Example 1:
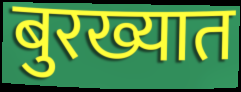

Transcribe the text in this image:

बुरख्यात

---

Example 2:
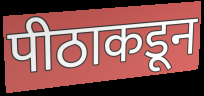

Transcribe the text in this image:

पीठाकडून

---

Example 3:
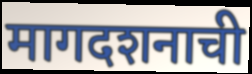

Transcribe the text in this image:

मागदशनाची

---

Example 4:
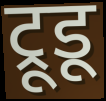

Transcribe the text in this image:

ट्रूडू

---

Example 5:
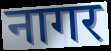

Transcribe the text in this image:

नागर